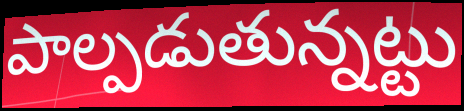
పాల్పడుతున్నట్టు